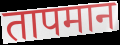
तापमान